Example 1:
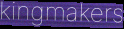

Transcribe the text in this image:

kingmakers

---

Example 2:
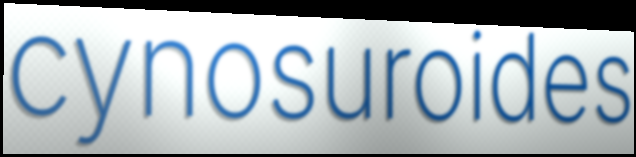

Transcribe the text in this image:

cynosuroides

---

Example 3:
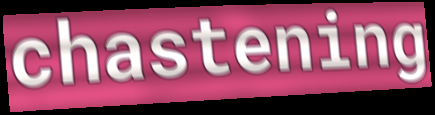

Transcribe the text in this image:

chastening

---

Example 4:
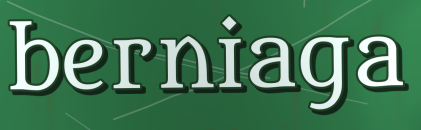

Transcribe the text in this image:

berniaga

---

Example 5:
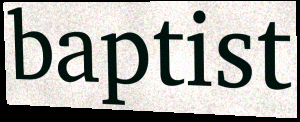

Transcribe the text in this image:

baptist